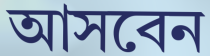
আসবেন